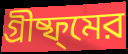
গ্রীষ্ফ্মের